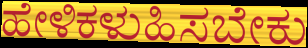
ಹೇಳಿಕಳುಹಿಸಬೇಕು